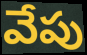
వేపు